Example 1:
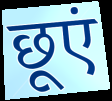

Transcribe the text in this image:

छूएं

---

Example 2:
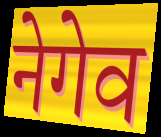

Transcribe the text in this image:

नेगेव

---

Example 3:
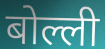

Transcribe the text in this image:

बोल्ली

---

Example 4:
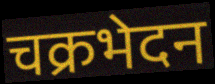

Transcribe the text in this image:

चक्रभेदन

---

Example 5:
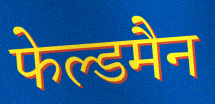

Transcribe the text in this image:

फेल्डमैन